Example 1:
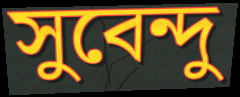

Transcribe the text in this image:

সুবেন্দু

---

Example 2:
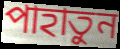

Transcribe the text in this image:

পাহাতুন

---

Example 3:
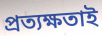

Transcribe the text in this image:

প্রত্যক্ষতাই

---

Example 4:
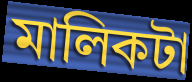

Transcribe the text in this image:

মালিকটা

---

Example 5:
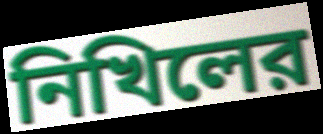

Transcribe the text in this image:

নিখিলের